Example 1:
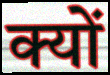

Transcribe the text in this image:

क्‍यों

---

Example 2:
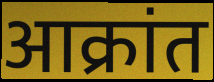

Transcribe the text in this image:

आक्रांत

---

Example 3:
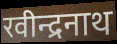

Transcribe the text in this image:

रवीन्द्रनाथ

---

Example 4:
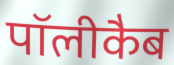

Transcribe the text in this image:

पॉलीकैब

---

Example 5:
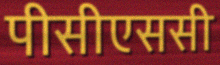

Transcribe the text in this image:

पीसीएससी